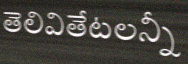
తెలివితేటలన్నీ